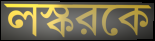
লস্করকে